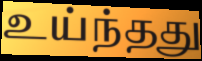
உய்ந்தது